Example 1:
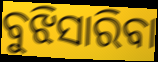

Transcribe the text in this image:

ବୁଝିସାରିବା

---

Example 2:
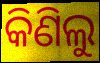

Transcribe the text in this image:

କିଣିଲୁ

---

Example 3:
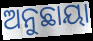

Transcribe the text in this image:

ଅନୁଛାୟା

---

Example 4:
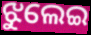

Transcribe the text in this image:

ଝୁଲେଇ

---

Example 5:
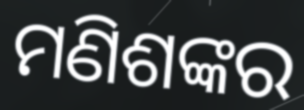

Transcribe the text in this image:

ମଣିଶଙ୍କର